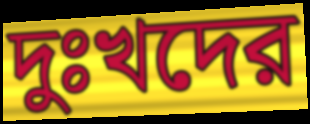
দুঃখদের